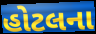
હોટલના